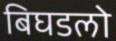
बिघडलो